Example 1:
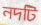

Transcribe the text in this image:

নদটি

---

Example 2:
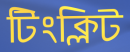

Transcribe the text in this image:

টিংক্লিট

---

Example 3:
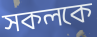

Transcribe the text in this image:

সকলকে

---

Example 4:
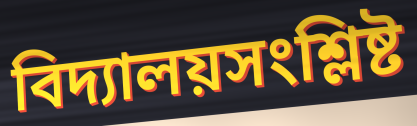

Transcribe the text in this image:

বিদ্যালয়সংশ্লিষ্ট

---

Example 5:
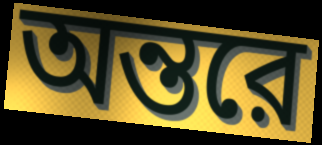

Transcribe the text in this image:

অন্তরে